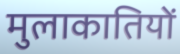
मुलाकातियों